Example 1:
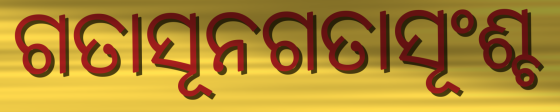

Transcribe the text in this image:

ଗତାସୂନଗତାସୂଂଶ୍ଚ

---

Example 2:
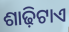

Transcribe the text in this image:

ଶାଢ଼ିଟାଏ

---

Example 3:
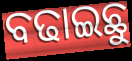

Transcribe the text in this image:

ବଢାଇଛୁ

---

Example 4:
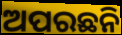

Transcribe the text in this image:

ଅପରଛନି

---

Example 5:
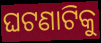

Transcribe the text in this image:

ଘଟଣାଟିକୁ